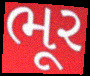
ભૂર